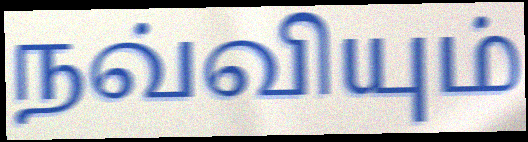
நவ்வியும்